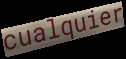
cualquier